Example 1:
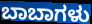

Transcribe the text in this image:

ಬಾಬಾಗಳು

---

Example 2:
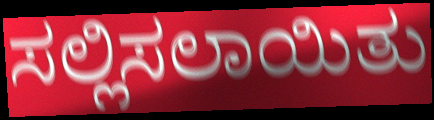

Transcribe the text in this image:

ಸಲ್ಲಿಸಲಾಯಿತು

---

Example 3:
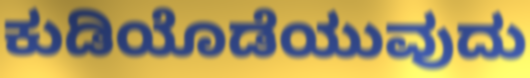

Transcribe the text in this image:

ಕುಡಿಯೊಡೆಯುವುದು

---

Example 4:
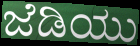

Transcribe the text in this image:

ಜೆಡಿಯು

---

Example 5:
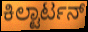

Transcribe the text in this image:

ಕಿಲ್ಟಾರ್ಟನ್